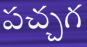
పచ్చగ